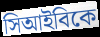
সিআইবিকে